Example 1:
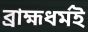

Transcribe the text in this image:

ব্রাহ্মধর্মই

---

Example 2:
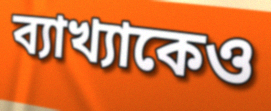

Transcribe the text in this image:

ব্যাখ্যাকেও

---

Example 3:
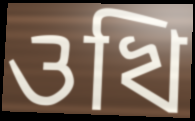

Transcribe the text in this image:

ওখি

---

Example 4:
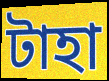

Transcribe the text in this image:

টাহা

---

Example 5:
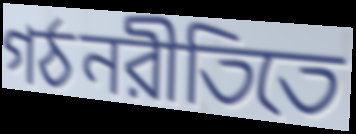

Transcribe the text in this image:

গঠনরীতিতে